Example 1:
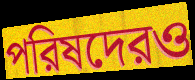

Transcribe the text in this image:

পরিষদেরও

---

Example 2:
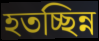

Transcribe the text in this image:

হতচ্ছিন্ন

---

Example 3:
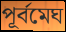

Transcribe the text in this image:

পূর্বমেঘ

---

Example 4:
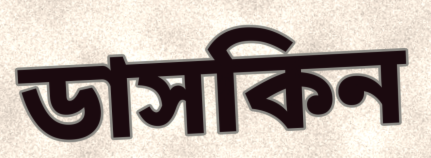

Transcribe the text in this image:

ডাসকিন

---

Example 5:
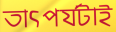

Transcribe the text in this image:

তাৎপর্যটাই